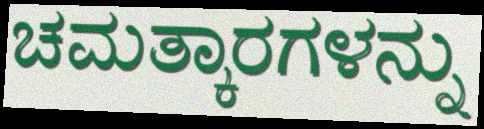
ಚಮತ್ಕಾರಗಳನ್ನು